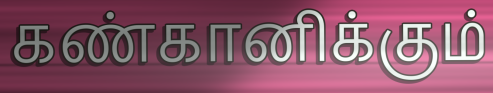
கண்கானிக்கும்